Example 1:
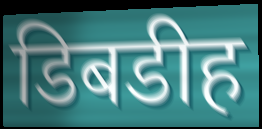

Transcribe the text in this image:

डिबडीह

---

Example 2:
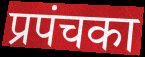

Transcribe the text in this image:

प्रपंचका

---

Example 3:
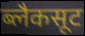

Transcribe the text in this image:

ब्लैकसूट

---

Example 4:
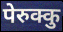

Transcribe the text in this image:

पेरुक्कु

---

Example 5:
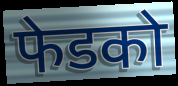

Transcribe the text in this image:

फेडको